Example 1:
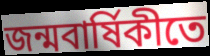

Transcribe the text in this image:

জন্মবাৰ্ষিকীতে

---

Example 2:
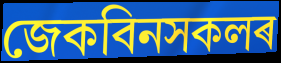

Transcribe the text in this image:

জেকবিনসকলৰ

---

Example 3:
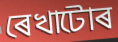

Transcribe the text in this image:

ৰেখাটোৰ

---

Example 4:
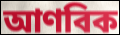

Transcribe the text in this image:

আণবিক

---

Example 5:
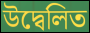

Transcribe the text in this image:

উদ্বেলিত